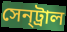
সেন্‌ট্রাল